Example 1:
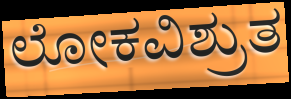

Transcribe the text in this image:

ಲೋಕವಿಶ್ರುತ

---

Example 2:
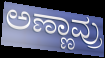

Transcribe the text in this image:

ಅಣ್ಣಾವ್ರು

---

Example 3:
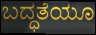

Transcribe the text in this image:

ಬದ್ಧತೆಯೂ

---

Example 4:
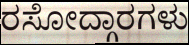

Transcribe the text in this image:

ರಸೋದ್ಗಾರಗಳು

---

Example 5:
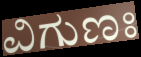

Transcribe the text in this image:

ವಿಗುಣಃ